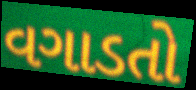
વગાડતો